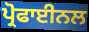
ਪ੍ਰੋਫਾਈਨਲ